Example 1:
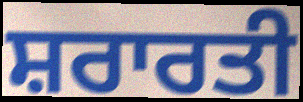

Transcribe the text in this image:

ਸ਼ਰਾਰਤੀ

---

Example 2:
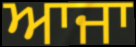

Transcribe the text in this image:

ਆਜਾ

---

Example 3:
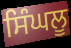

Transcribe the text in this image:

ਸਿੰਘਲੂ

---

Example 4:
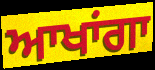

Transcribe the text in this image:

ਆਖਾਂਗਾ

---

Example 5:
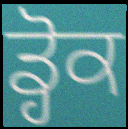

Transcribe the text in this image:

ਡ੍ਹੋਕ